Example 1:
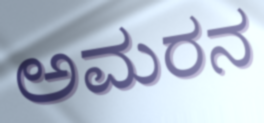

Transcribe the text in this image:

ಅಮರನ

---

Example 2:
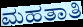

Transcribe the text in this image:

ಮಹತಾತಿ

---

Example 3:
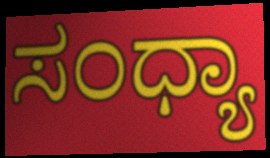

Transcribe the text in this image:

ಸಂಧ್ಯಾ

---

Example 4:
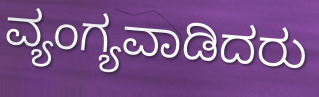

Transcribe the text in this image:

ವ್ಯಂಗ್ಯವಾಡಿದರು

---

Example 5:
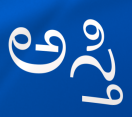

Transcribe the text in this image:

ಅಸ್ತಿ